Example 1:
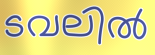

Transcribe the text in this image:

ടവലിൽ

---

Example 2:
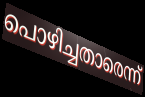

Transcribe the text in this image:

പൊഴിച്ചതാരെന്ന്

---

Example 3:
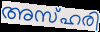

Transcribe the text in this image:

അസ്ഹരി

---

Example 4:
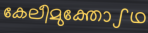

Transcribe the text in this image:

കേലീമുക്തോഽഥ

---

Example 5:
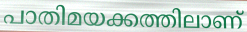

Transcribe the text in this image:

പാതിമയക്കത്തിലാണ്